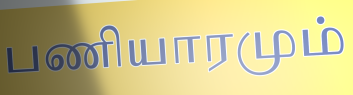
பணியாரமும்